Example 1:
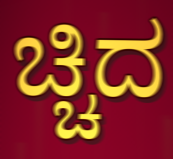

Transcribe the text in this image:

ಚ್ಚಿದ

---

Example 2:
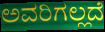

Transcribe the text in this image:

ಅವರಿಗಲ್ಲದೆ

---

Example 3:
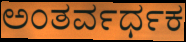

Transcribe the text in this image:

ಅಂತರ್ವರ್ಧಕ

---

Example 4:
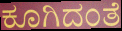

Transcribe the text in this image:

ಕೂಗಿದಂತೆ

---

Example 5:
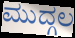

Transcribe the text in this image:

ಮುದ್ಗಲ